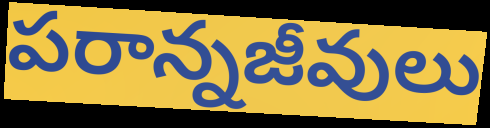
పరాన్నజీవులు